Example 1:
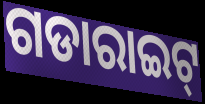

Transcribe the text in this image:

ଗଡାରାଇଟ୍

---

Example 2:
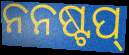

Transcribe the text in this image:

ନନଷ୍ଟପ୍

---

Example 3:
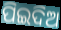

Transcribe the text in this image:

ପିଇଦିଅ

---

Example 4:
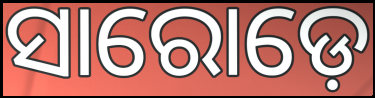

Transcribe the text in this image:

ସାରୋଡ଼େ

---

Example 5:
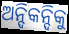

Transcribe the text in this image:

ଅନ୍ଦିକନ୍ଦିକୁ